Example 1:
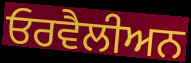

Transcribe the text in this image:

ਓਰਵੈਲੀਅਨ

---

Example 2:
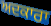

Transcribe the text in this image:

ਅਦਕਾਰਾ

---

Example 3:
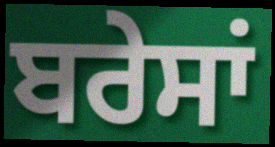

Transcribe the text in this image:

ਬਰੇਸਾਂ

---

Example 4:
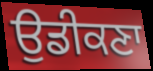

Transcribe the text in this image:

ਉਡੀਕਣਾ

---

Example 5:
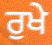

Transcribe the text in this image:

ਰੁਖੇ